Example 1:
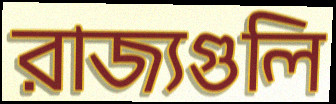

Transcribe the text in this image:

রাজ্যগুলি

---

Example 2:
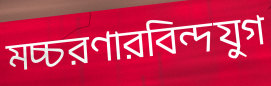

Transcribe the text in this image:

মচ্চরণারবিন্দযুগ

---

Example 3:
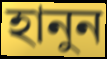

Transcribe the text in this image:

হানুন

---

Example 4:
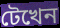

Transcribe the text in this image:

টেখেন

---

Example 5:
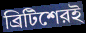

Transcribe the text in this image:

ব্রিটিশেরই